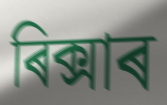
ৰিক্সাৰ